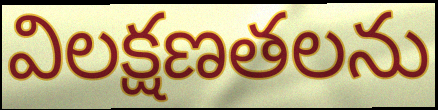
విలక్షణతలను